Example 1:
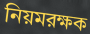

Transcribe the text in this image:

নিয়মরক্ষক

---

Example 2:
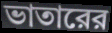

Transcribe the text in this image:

ভাতারের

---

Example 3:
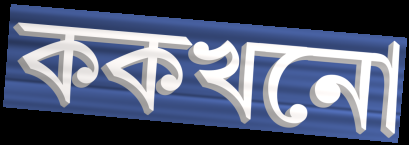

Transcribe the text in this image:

ককখনো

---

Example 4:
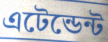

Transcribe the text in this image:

এটেন্ডেন্ট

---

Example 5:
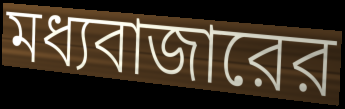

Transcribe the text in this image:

মধ্যবাজারের